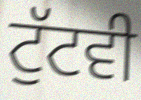
ਟੁੱਟਵੀ